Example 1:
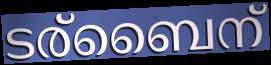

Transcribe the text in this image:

ടര്ബൈന്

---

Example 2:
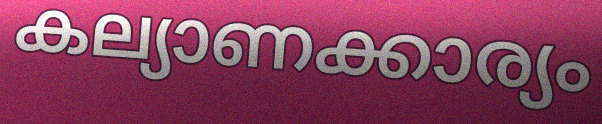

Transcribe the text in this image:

കല്യാണക്കാര്യം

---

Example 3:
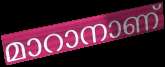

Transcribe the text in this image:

മാറാനാണ്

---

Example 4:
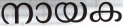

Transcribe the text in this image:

നായക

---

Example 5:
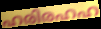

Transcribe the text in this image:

ഹരിരഹഹ